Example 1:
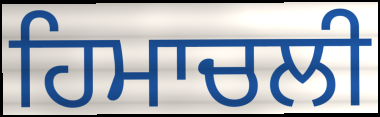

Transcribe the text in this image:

ਹਿਮਾਚਲੀ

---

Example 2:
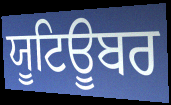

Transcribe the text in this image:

ਯੂਟਿਊਬਰ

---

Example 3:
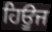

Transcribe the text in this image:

ਹਿਊਜ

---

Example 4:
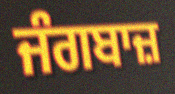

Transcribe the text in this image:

ਜੰਗਬਾਜ਼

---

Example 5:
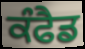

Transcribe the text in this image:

ਕੰਫੈਡ